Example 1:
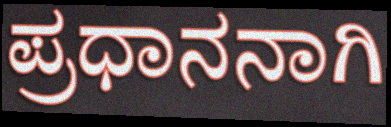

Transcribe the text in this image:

ಪ್ರಧಾನನಾಗಿ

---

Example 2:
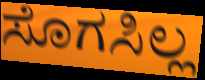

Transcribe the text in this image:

ಸೊಗಸಿಲ್ಲ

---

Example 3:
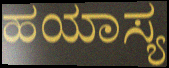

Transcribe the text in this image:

ಹಯಾಸ್ಯ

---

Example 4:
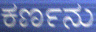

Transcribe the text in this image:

ಕರ್ಣನು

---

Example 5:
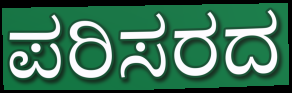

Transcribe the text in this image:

ಪರಿಸರದ